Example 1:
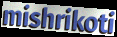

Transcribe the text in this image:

mishrikoti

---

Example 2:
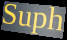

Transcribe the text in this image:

Suph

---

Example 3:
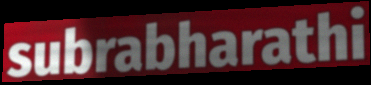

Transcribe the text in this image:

subrabharathi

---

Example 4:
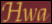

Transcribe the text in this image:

Hwa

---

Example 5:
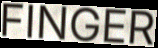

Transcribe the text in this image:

FINGER